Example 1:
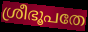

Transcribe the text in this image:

ശ്രീഭൂപതേ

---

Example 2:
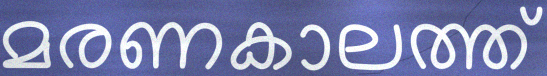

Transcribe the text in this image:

മരണകാലത്ത്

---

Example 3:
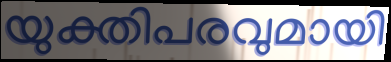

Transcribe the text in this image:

യുക്തിപരവുമായി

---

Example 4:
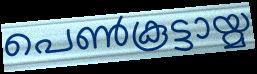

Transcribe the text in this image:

പെൺകൂട്ടായ്മ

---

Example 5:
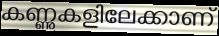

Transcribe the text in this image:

കണ്ണുകളിലേക്കാണ്